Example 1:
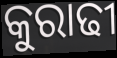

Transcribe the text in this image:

କୁରାଢୀ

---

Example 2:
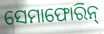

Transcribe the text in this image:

ସେମାଫୋରିନ୍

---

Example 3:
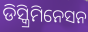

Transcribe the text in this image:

ଡିସ୍କ୍ରିମିନେସନ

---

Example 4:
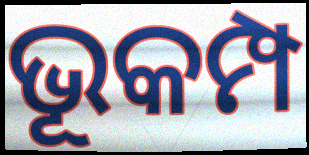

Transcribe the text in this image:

ଭୂକମ୍ପ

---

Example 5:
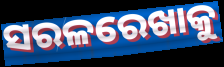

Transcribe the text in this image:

ସରଳରେଖାକୁ